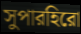
সুপারহিরো